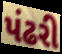
પંઢરી